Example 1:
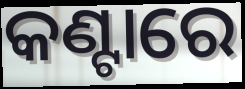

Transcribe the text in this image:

କଣ୍ଟାରେ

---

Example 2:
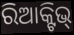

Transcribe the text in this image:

ରିଆକ୍ଟିଭ୍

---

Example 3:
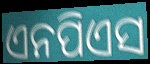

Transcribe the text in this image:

ଏନପିଏସ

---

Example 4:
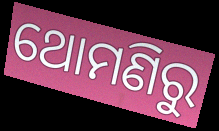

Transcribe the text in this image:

ଥୋମଣିରୁ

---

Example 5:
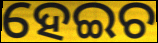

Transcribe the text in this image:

ହେଇଚ